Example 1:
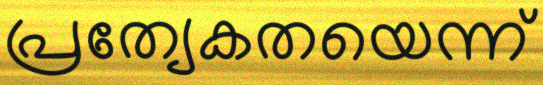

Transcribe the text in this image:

പ്രത്യേകതയെന്ന്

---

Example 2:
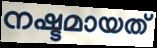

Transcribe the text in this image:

നഷ്ടമായത്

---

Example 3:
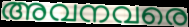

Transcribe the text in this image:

അവനവരെ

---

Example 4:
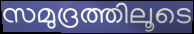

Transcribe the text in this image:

സമുദ്രത്തിലൂടെ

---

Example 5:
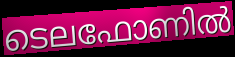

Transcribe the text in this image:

ടെലഫോണിൽ